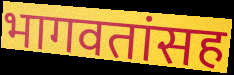
भागवतांसह